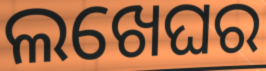
ଲଖେଘର